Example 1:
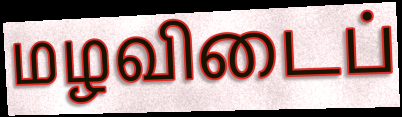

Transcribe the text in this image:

மழவிடைப்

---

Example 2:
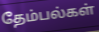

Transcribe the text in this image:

தேம்பல்கள்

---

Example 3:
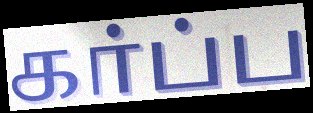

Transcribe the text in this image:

கர்ப்ப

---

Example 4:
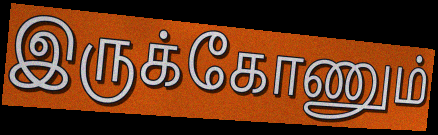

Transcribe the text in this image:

இருக்கோணும்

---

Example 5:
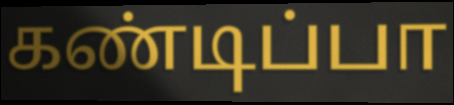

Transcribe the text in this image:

கண்டிப்பா